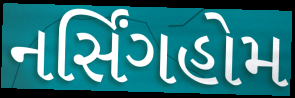
નર્સિંગહોમ